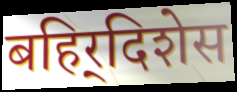
बहिर्दिशेस